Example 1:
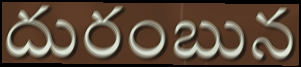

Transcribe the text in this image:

దురంబున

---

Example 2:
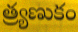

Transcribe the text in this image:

త్ర్యణుకం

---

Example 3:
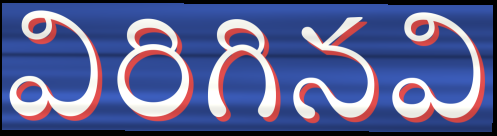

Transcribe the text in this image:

విరిగినవి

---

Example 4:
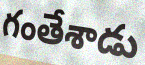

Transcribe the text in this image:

గంతేశాడు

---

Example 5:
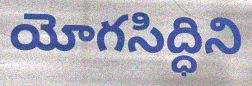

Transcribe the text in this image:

యోగసిద్ధిని